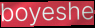
boyeshe